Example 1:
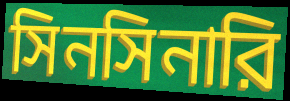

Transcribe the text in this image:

সিনসিনারি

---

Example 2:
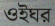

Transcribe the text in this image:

ওইঘর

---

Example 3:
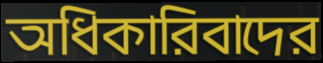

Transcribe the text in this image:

অধিকারিবাদের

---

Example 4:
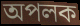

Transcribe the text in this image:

অপলক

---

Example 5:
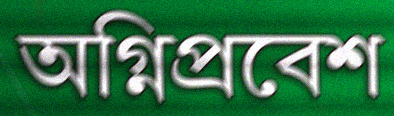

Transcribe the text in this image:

অগ্নিপ্রবেশ